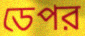
ডেপর